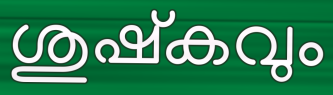
ശുഷ്കവും